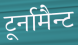
टूर्नामैन्ट